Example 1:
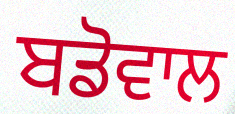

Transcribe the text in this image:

ਬਡੋਵਾਲ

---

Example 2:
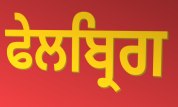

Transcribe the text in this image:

ਫੇਲਬ੍ਰਿਗ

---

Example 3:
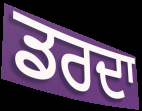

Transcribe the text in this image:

ਡਰਦਾ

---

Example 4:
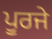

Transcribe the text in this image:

ਪੂਰਜੇ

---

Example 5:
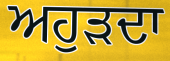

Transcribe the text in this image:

ਅਹੁੜਦਾ